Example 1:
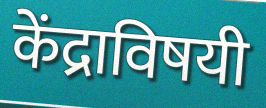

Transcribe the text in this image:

केंद्राविषयी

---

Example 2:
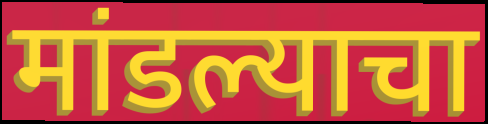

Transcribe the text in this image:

मांडल्याचा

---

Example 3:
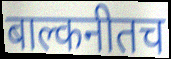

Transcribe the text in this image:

बाल्कनीतच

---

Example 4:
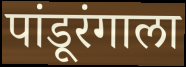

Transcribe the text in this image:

पांडूरंगाला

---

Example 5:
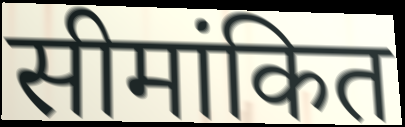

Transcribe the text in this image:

सीमांकित